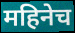
महिनेच